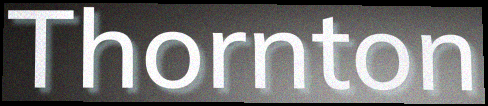
Thornton